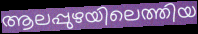
ആലപ്പുഴയിലെത്തിയ